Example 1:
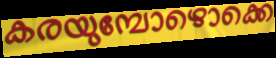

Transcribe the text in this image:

കരയുമ്പോഴൊക്കെ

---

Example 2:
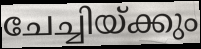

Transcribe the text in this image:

ചേച്ചിയ്ക്കും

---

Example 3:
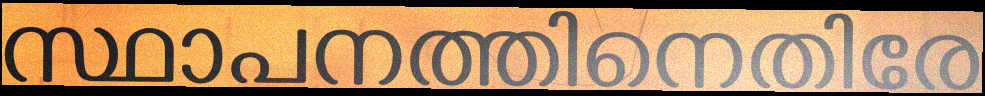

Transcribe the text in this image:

സ്ഥാപനത്തിനെതിരേ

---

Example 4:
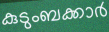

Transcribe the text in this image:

കുടുംബക്കാർ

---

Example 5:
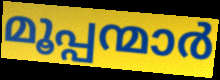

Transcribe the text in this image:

മൂപ്പന്മാർ